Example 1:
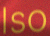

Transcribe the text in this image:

Iso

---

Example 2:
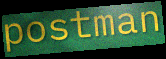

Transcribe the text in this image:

postman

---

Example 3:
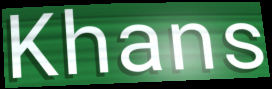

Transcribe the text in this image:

Khans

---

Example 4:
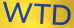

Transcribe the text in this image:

WTD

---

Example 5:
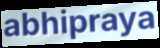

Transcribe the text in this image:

abhipraya